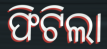
ଫିଟିଲା